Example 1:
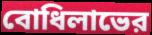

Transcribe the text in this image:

বোধিলাভের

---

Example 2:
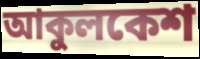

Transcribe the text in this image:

আকুলকেশ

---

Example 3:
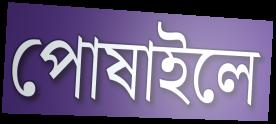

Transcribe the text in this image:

পোষাইলে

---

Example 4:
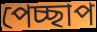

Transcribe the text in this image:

পেচ্ছাপ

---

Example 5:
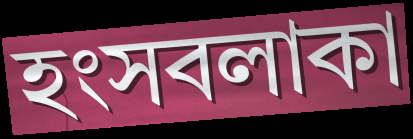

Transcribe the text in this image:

হংসবলাকা